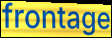
frontage